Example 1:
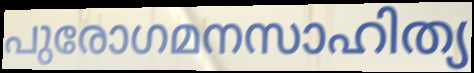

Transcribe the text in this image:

പുരോഗമനസാഹിത്യ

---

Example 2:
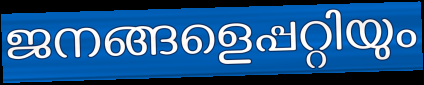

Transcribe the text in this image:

ജനങ്ങളെപ്പറ്റിയും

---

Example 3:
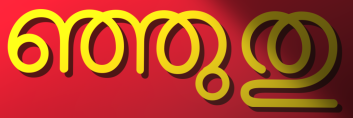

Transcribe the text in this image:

ഞ്ഞുതു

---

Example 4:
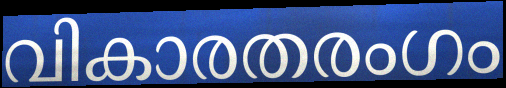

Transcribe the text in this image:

വികാരതരംഗം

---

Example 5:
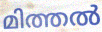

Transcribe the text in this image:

മിത്തൽ